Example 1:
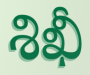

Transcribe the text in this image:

శిఖీ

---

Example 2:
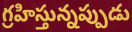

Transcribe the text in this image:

గ్రహిస్తున్నప్పుడు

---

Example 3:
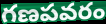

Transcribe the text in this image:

గణపవరం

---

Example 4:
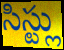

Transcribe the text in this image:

సిస్ట్లు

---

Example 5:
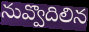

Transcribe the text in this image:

నువ్వొదిలిన